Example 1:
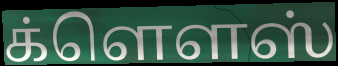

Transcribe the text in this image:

க்ளௌஸ்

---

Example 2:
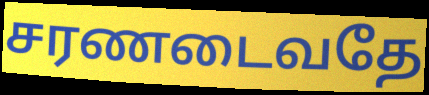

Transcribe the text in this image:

சரணடைவதே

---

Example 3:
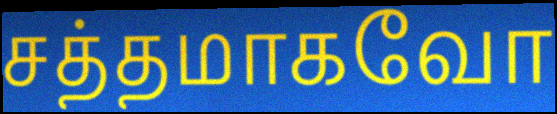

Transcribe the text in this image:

சத்தமாகவோ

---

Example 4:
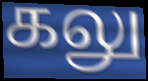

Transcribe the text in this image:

கலு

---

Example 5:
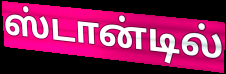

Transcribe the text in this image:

ஸ்டான்டில்